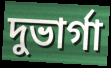
দুভার্গা